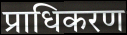
प्राधिकरण